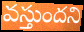
వస్తుందని